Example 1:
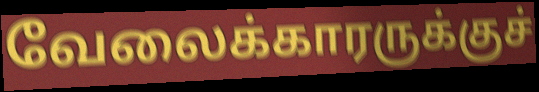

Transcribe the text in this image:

வேலைக்காரருக்குச்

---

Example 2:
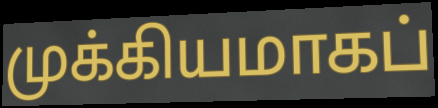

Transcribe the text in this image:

முக்கியமாகப்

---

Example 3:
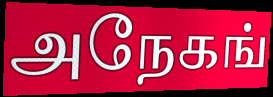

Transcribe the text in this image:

அநேகங்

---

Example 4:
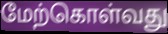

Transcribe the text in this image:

மேற்கொள்வது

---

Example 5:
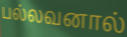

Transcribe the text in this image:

பல்லவனால்